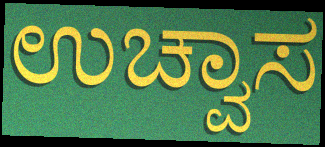
ಉಚ್ವಾಸ